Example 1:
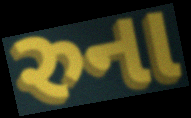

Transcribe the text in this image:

રુના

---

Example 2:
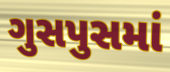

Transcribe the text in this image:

ગુસપુસમાં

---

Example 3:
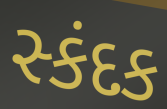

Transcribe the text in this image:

સ્કંદક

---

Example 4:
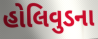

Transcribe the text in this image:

હોલિવુડના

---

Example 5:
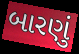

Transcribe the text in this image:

બારણું